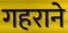
गहराने